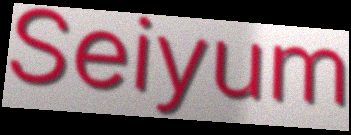
Seiyum